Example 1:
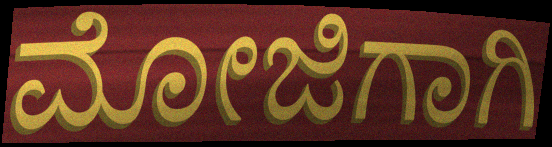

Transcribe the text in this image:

ಮೋಜಿಗಾಗಿ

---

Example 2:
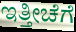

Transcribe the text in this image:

ಇತ್ತೀಚೆಗೆ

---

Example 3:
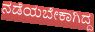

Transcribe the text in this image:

ನಡೆಯಬೇಕಾಗಿದ್ದ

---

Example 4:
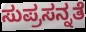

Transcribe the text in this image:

ಸುಪ್ರಸನ್ನತೆ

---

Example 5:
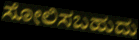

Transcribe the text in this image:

ಸೋಲಿಸಬಹುದು